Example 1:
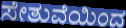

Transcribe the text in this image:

ಸೇತುವೆಯಿಂದ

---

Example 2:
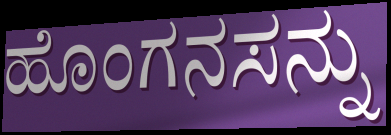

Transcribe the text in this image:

ಹೊಂಗನಸನ್ನು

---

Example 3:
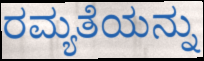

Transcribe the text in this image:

ರಮ್ಯತೆಯನ್ನು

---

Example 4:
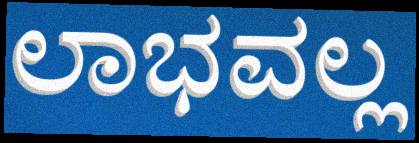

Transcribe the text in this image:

ಲಾಭವಲ್ಲ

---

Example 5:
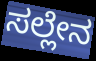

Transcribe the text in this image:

ಸಲ್ಲೇನ